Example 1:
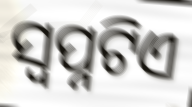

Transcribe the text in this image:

ସ୍ବପ୍ନଟିଏ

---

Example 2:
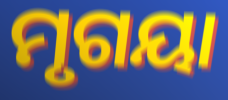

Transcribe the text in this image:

ମୃଗୟା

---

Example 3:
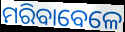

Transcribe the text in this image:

ମରିବାବେଳେ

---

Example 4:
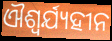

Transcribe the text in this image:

ଐଶ୍ଵର୍ଯ୍ୟହୀନ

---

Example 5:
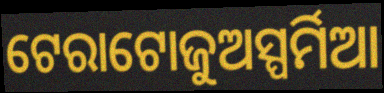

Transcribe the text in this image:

ଟେରାଟୋଜୁଅସ୍ପର୍ମିଆ